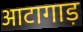
आटागाड़